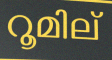
റൂമില്